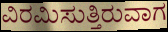
ವಿರಮಿಸುತ್ತಿರುವಾಗ